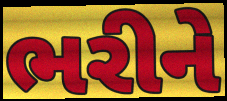
ભરીને